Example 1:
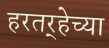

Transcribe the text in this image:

हरतर्हेच्या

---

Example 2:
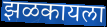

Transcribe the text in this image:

झळकायला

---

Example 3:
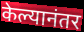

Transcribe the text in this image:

केल्यानंतर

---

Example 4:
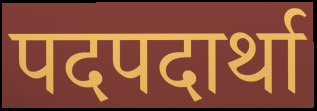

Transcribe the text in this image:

पदपदार्था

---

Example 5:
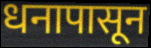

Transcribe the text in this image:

धनापासून